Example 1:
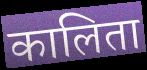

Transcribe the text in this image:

कालिता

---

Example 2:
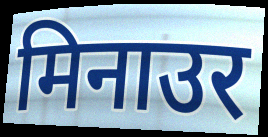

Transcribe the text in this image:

मिनाउर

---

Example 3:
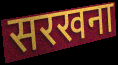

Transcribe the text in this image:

सरखना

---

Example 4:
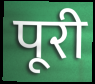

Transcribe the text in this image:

पूरी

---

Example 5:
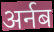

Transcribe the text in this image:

अर्नब